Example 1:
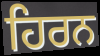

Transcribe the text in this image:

ਹਿਰਨ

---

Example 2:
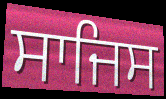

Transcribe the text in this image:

ਸਾਜਿਸ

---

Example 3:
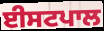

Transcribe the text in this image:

ਈਸਟਪਾਲ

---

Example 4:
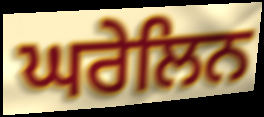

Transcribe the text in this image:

ਘਰੇਲਿਨ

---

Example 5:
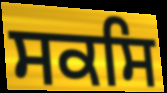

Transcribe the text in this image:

ਸਕਸਿ